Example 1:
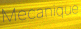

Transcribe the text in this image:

Mecanique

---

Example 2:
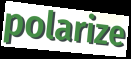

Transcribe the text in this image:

polarize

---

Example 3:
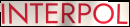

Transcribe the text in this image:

INTERPOL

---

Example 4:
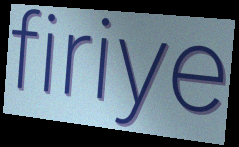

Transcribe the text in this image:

firiye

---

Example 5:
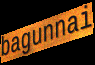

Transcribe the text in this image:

bagunnai